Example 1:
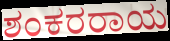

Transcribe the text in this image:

ಶಂಕರರಾಯ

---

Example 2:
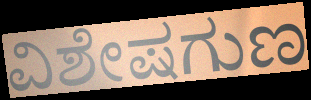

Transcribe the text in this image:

ವಿಶೇಷಗುಣ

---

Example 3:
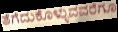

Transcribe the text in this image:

ತೆಗೆದುಕೊಳ್ಳುವವರೆಗೂ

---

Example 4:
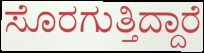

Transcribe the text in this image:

ಸೊರಗುತ್ತಿದ್ದಾರೆ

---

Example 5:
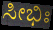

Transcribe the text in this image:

ಸೀಭಿಃ